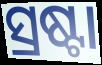
ସ୍ରଷ୍ଟା